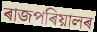
ৰাজপৰিয়ালৰ